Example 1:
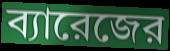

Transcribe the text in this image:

ব্যারেজের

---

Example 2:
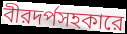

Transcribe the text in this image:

বীরদর্পসহকারে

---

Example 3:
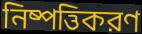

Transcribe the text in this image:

নিষ্পত্তিকরণ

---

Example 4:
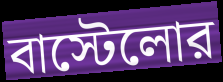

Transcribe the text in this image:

বাস্টেলোর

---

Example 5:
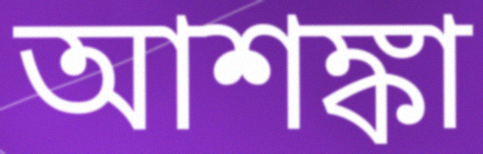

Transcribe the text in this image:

আশঙ্কা